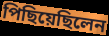
পিছিয়েছিলেন